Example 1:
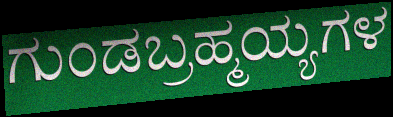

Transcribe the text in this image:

ಗುಂಡಬ್ರಹ್ಮಯ್ಯಗಳ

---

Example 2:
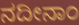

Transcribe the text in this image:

ನದೀನಾಂ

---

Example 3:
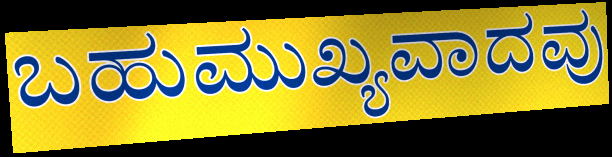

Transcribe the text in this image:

ಬಹುಮುಖ್ಯವಾದವು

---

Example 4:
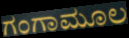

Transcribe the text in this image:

ಗಂಗಾಮೂಲ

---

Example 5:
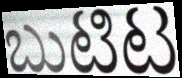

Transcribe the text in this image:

ಬುಟಿಟ